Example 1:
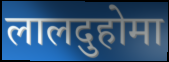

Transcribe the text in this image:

लालदुहोमा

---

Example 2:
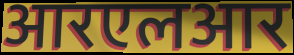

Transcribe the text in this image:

आरएलआर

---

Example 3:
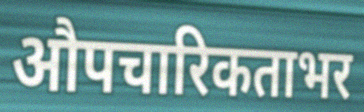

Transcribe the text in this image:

औपचारिकताभर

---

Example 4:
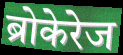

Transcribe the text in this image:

ब्रोकेरेज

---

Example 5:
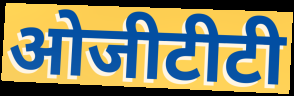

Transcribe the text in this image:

ओजीटीटी